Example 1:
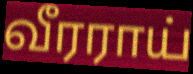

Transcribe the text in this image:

வீரராய்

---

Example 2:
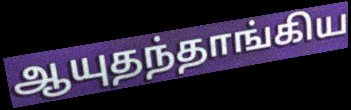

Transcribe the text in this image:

ஆயுதந்தாங்கிய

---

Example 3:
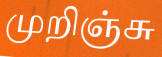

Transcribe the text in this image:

முறிஞ்சு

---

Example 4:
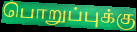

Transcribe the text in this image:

பொறுப்புக்கு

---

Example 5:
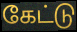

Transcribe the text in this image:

கேட்டு